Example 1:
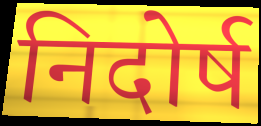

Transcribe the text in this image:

निदोर्ष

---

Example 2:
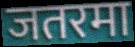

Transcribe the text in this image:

जतरमा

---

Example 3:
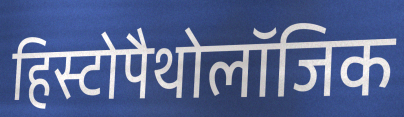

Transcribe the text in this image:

हिस्टोपैथोलॉजिक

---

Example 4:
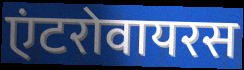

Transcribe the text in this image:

एंटरोवायरस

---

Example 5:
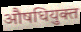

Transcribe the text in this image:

औषधियुक्त